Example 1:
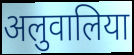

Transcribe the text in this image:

अलुवालिया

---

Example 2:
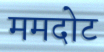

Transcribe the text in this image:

ममदोट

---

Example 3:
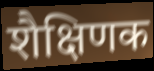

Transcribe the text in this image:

शैक्षिणक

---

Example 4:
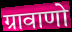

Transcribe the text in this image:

ग्रावाणो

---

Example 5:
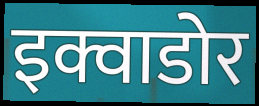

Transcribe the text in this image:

इक्‍वाडोर